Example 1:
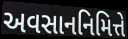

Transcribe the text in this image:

અવસાનનિમિત્તે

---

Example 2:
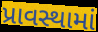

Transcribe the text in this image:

પ્રાવસ્થામાં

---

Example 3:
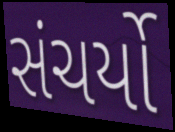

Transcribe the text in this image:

સંચર્યો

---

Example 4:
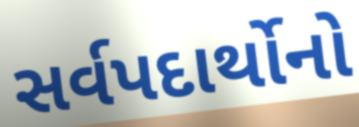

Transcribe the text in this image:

સર્વપદાર્થોનો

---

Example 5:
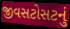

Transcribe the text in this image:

જીવસટોસટનું